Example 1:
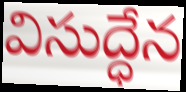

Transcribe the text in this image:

విసుద్ధేన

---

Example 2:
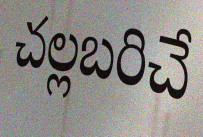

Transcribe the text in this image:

చల్లబరిచే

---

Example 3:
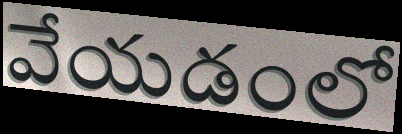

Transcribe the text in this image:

వేయడంలో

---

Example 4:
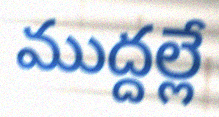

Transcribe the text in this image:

ముద్దల్లే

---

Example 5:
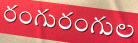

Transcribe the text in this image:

రంగురంగుల